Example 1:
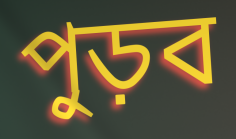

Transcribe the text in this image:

পুড়ব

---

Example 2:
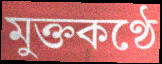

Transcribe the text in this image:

মুক্তকণ্ঠে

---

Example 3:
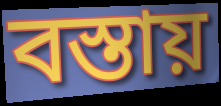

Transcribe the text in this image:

বস্তায়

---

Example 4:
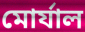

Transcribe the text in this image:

মোর্যাল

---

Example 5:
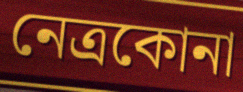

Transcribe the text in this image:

নেত্রকোনা